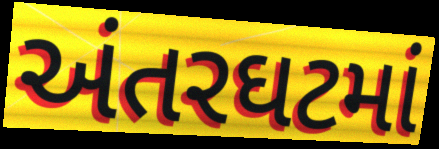
અંતરઘટમાં